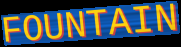
FOUNTAIN